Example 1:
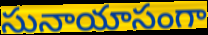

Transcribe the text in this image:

సునాయాసంగా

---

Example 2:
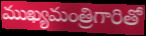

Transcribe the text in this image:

ముఖ్యమంత్రిగారితో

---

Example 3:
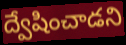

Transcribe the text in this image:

ద్వేషించాడని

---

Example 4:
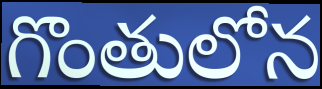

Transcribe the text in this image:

గొంతులోన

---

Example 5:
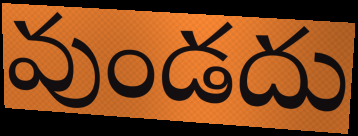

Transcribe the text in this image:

వుండదు